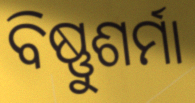
ବିଷ୍ଣୁଶର୍ମା